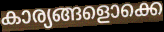
കാര്യങ്ങളൊക്കെ